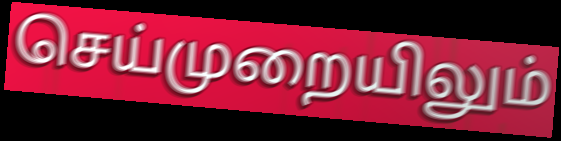
செய்முறையிலும்